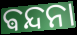
ଵନ୍ଦନା